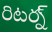
రిటర్న్